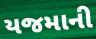
યજમાની